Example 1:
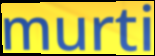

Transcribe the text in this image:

murti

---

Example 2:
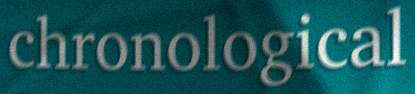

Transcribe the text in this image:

chronological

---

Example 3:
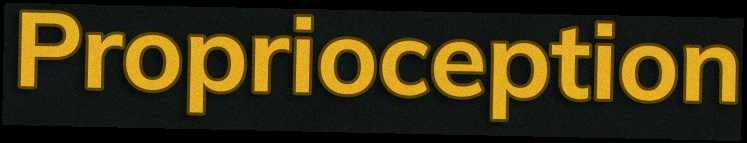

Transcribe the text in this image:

Proprioception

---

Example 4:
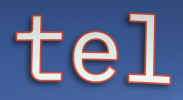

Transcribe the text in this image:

tel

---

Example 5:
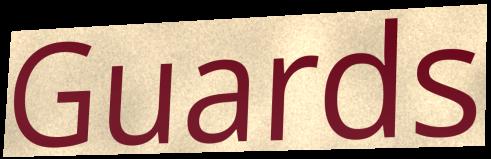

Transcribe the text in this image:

Guards